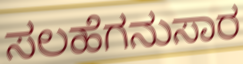
ಸಲಹೆಗನುಸಾರ